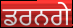
ਡਰਨਗੇ